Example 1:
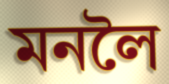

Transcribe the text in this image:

মনলৈ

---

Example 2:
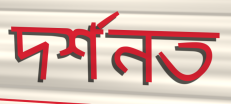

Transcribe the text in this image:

দৰ্শনত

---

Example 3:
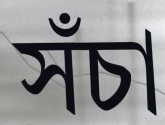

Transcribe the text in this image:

সঁচা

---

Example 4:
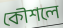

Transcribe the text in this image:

কৌশলে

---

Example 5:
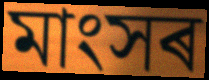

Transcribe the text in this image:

মাংসৰ